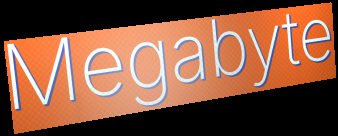
Megabyte